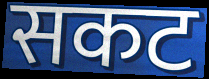
सकट